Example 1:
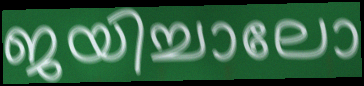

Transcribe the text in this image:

ജയിച്ചാലോ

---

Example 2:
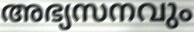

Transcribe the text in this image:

അഭ്യസനവും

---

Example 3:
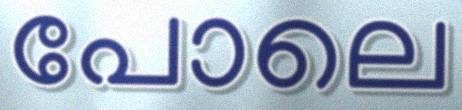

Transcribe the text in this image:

പോലെ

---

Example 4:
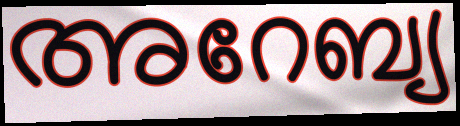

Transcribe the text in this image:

അറേബ്യ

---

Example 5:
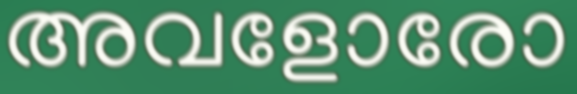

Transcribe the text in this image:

അവളോരോ